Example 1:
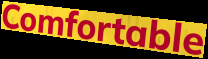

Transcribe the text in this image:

Comfortable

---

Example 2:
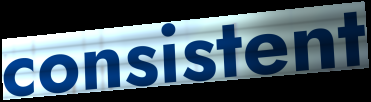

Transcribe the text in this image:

consistent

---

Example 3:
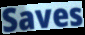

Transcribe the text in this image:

Saves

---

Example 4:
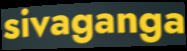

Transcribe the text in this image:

sivaganga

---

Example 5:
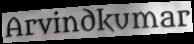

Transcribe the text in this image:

Arvindkumar